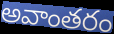
అవాంతరం